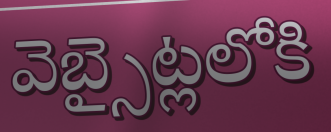
వెబ్సైట్లలోకి